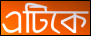
এটিকে